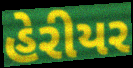
હેરીયર